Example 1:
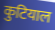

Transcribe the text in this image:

कुटियाल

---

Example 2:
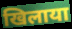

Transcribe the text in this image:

खिलाया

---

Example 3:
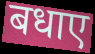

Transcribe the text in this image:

बधाए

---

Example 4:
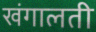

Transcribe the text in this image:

खंगालती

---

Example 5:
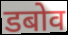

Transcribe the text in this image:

डबोव